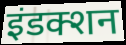
इंडक्शन